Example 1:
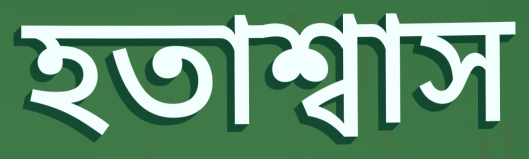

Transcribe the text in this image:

হতাশ্বাস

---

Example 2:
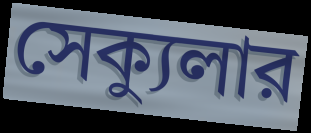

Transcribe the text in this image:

সেক্যুলার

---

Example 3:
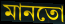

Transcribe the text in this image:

মানতো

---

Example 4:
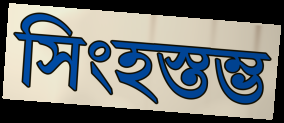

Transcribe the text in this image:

সিংহস্তম্ভ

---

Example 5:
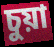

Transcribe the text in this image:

চুয়া